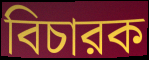
বিচারক